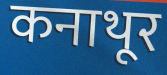
कनाथूर